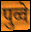
पुव्वे